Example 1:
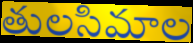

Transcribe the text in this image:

తులసిమాల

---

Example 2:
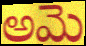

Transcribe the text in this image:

అమె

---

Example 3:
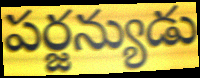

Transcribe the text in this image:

పర్జన్యుడు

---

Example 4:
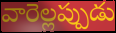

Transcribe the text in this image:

వారెల్లప్పుడు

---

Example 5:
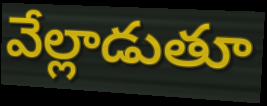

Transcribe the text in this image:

వేల్లాడుతూ